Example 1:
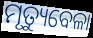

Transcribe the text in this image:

ମୃତ୍ୟୁବେଳା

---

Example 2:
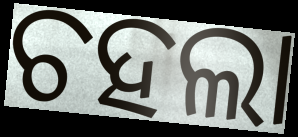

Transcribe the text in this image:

ଚହଲା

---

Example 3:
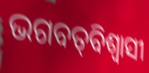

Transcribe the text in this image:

ଭଗବତ୍‌ବିଶ୍ଵାସୀ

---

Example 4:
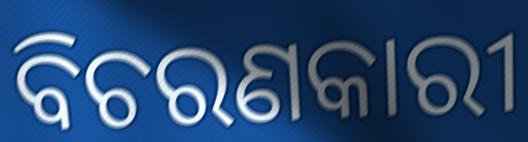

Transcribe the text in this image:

ବିଚରଣକାରୀ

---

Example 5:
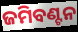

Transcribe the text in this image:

ଜମିବଣ୍ଟନ